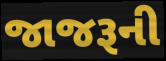
જાજરૂની